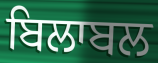
ਬਿਲਾਬਲ